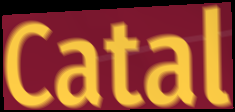
Catal